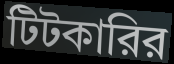
টিটকারির